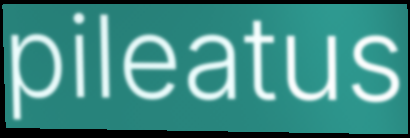
pileatus